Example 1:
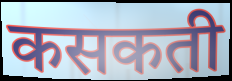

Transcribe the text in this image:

कसकती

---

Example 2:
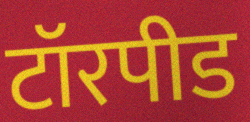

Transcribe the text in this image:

टॉरपीड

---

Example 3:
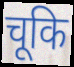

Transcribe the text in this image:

चूकि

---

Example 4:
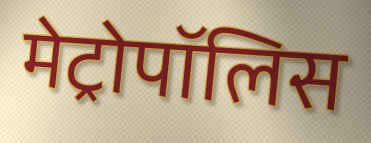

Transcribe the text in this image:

मेट्रोपॉलिस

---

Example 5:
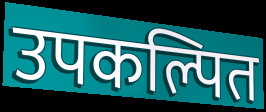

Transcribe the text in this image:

उपकल्पित